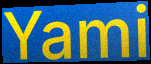
Yami